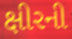
ક્ષીરની